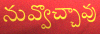
నువ్వొచ్చావు